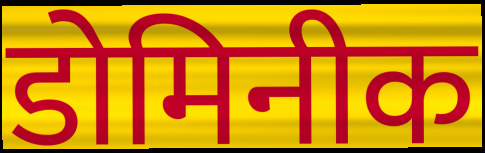
डोमिनीक